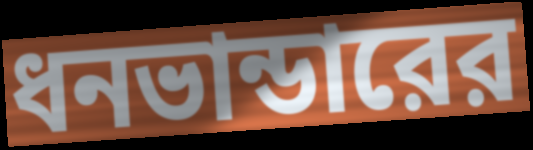
ধনভান্ডারের